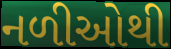
નળીઓથી